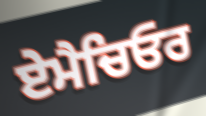
ਏਮੈਚਿਓਰ